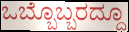
ಒಬ್ಬೊಬ್ಬರದ್ದೂ